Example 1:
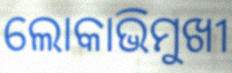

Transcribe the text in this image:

ଲୋକାଭିମୁଖୀ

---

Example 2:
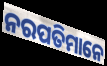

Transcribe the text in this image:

ନରପତିମାନେ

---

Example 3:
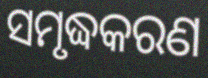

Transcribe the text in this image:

ସମୃଦ୍ଧକରଣ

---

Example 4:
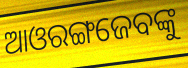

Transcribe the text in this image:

ଆଓରଙ୍ଗଜେବଙ୍କୁ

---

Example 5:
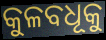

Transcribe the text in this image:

କୁଳବଧୂକୁ